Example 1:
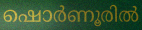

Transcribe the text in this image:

ഷൊർണൂരിൽ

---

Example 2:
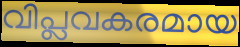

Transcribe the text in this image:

വിപ്ലവകരമായ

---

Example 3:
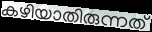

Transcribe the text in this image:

കഴിയാതിരുന്നത്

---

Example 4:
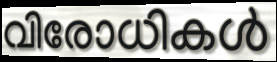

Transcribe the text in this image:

വിരോധികൾ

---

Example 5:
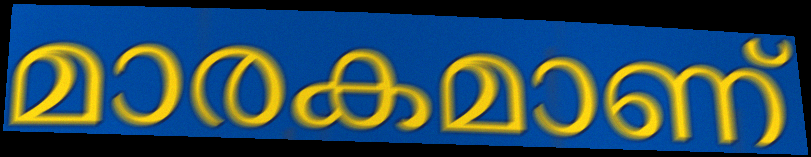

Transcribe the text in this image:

മാരകമാണ്